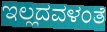
ಇಲ್ಲದವಳಂತೆ